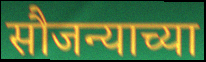
सौजन्याच्या